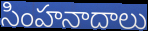
సింహనాదాలు